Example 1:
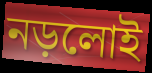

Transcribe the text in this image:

নড়লোই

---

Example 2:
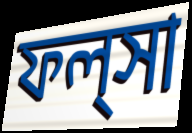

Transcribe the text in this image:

ফল্‌সা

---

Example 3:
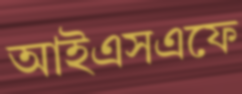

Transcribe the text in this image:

আইএসএফে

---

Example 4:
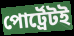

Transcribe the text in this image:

পোর্ট্রেটই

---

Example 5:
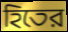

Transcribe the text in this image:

হিতের